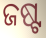
ଜଷ୍ଟ